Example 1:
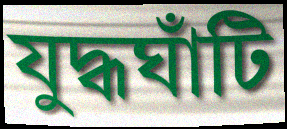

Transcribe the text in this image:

যুদ্ধঘাঁটি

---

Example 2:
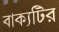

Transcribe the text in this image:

বাক্যটির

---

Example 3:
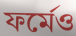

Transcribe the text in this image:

ফর্মেও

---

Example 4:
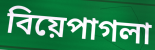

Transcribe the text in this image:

বিয়েপাগলা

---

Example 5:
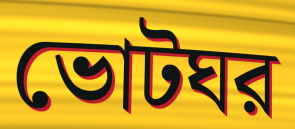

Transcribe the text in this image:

ভোটঘর